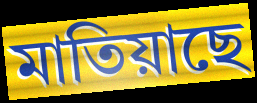
মাতিয়াছে